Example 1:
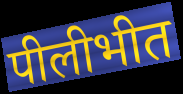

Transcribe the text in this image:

पीलीभीत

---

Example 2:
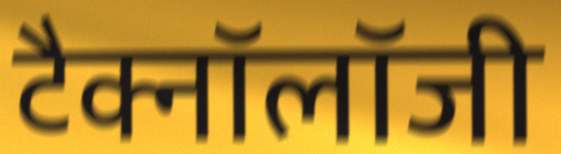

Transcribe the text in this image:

टैक्नॉलॉजी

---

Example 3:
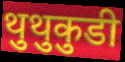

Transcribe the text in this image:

थुथुकुडी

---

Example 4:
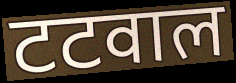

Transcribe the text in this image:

टटवाल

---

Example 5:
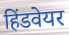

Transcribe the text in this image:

हिंडवेयर